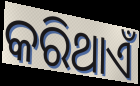
କରିଥାଏଁ